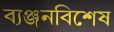
ব্যঞ্জনবিশেষ